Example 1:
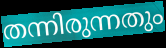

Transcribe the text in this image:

തന്നിരുന്നതും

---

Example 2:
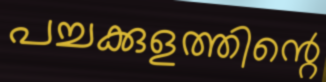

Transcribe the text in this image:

പച്ചക്കുളത്തിന്റെ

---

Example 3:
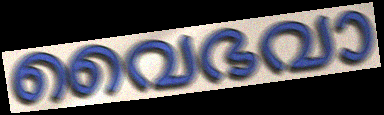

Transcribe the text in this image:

വൈഭവാ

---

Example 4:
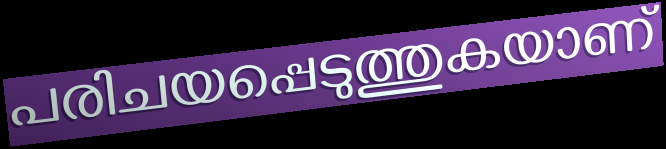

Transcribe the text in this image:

പരിചയപ്പെടുത്തുകയാണ്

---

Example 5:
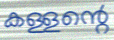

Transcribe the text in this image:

കള്ളന്റെ